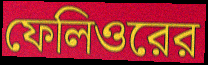
ফেলিওরের